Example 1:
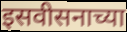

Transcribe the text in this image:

इसवीसनाच्या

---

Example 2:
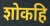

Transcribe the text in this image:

शोकहि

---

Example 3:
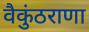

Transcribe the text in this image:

वैकुंठराणा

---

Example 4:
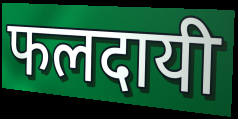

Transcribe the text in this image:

फलदायी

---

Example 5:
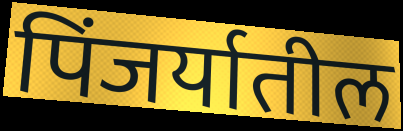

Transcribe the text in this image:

पिंजर्यातील